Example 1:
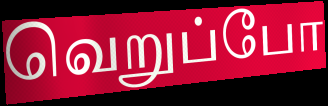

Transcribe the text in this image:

வெறுப்போ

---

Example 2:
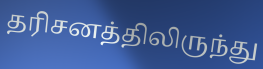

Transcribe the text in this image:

தரிசனத்திலிருந்து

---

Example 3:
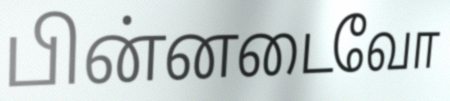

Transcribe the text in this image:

பின்னடைவோ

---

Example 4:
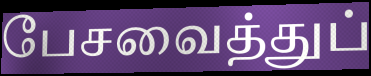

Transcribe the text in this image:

பேசவைத்துப்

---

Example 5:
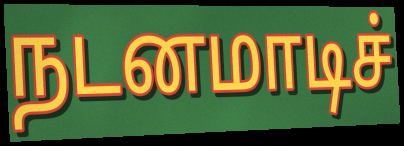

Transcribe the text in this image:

நடனமாடிச்